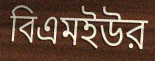
বিএমইউর